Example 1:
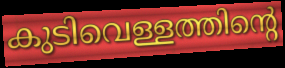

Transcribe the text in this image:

കുടിവെള്ളത്തിന്റെ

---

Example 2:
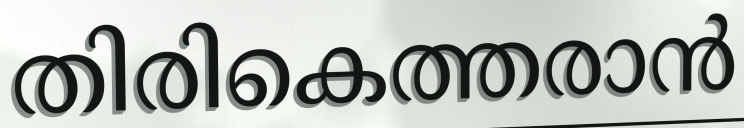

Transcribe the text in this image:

തിരികെത്തരാൻ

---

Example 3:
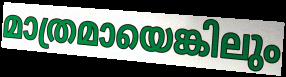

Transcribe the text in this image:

മാത്രമായെങ്കിലും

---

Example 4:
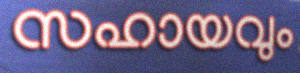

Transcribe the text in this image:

സഹായവും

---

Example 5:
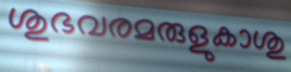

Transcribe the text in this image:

ശുഭവരമരുളുകാശു